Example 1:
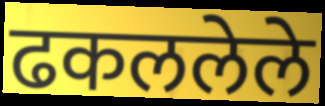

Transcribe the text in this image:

ढकललेले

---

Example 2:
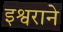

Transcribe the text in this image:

इश्वराने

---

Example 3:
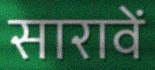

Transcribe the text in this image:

सारावें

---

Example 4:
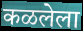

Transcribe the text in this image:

कळलेला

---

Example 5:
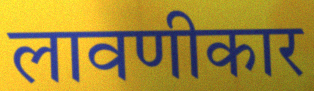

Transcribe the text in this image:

लावणीकार